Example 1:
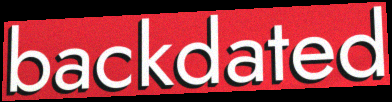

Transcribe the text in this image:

backdated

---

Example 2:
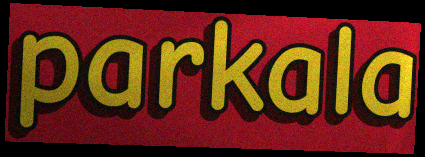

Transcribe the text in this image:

parkala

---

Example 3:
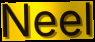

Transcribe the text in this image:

Neel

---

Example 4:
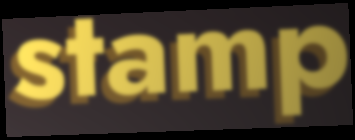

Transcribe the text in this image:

stamp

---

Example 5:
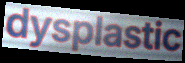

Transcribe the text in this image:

dysplastic